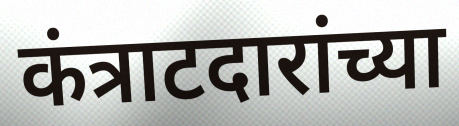
कंत्राटदारांच्या